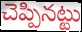
చెప్పినట్టు